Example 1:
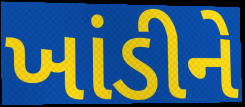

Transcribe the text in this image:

ખાંડીને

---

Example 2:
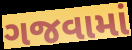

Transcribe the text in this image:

ગજવામાં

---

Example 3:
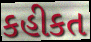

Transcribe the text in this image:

કહીકત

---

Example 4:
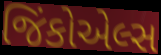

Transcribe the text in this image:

જિંકોએલ્સ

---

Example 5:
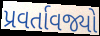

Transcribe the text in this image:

પ્રવર્તાવજ્યો